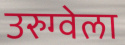
उरुग्वेला